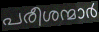
പരീശന്മാർ